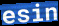
esin